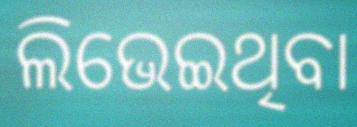
ଲିଭେଇଥିବା